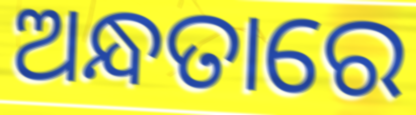
ଅନ୍ଧତାରେ